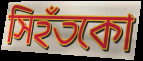
সিহঁতকো